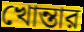
খোন্তার